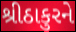
શ્રીઠાકુરને